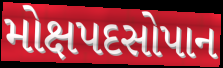
મોક્ષપદસોપાન